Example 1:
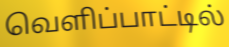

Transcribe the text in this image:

வெளிப்பாட்டில்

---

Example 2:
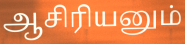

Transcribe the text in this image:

ஆசிரியனும்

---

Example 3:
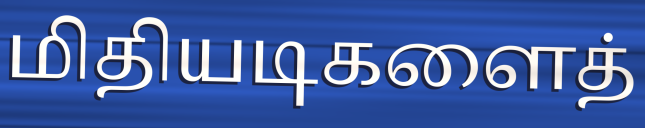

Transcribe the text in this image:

மிதியடிகளைத்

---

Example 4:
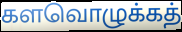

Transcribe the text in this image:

களவொழுக்கத்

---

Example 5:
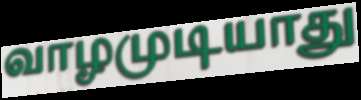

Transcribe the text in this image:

வாழமுடியாது